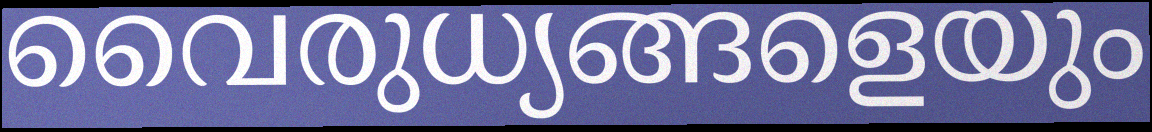
വൈരുധ്യങ്ങളെയും